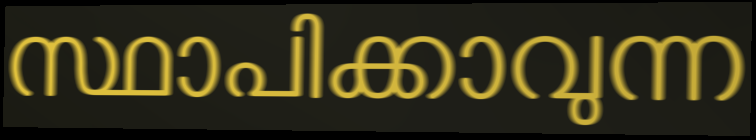
സ്ഥാപിക്കാവുന്ന